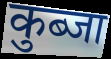
कुब्जा